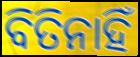
ବିତିନାହିଁ